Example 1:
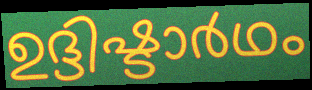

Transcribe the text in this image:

ഉദ്ദിഷ്ടാർഥം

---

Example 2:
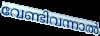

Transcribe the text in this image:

വേണ്ടിവന്നാൽ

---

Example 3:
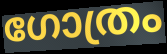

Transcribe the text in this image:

ഗോത്രം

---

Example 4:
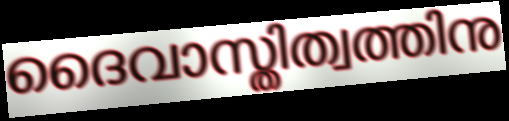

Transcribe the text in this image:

ദൈവാസ്തിത്വത്തിനു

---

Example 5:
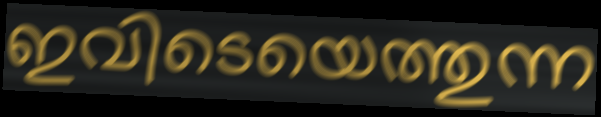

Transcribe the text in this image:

ഇവിടെയെത്തുന്ന